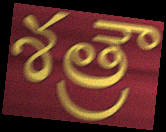
శత్రౌ